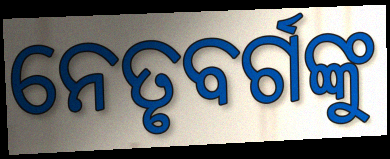
ନେତୃବର୍ଗଙ୍କୁ